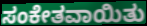
ಸಂಕೇತವಾಯಿತು